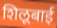
शिलूबाई